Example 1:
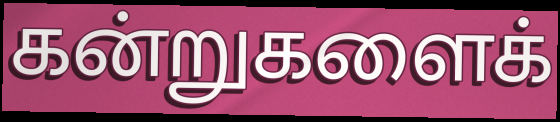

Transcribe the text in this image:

கன்றுகளைக்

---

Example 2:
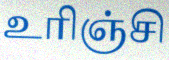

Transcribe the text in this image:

உரிஞ்சி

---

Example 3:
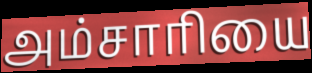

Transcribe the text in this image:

அம்சாரியை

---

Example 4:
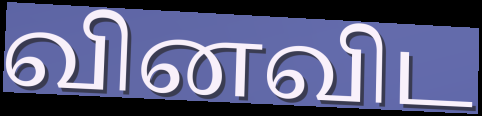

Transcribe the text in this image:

வினவிட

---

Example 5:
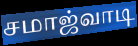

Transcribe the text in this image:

சமாஜ்வாடி